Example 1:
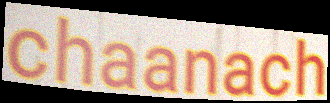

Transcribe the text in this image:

chaanach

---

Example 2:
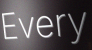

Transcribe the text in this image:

Every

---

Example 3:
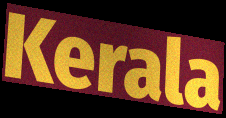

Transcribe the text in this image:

Kerala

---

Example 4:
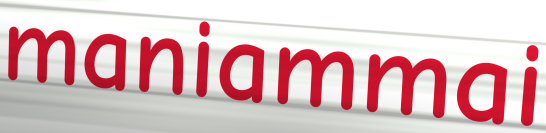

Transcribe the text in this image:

maniammai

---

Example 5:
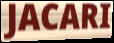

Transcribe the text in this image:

JACARI